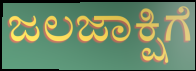
ಜಲಜಾಕ್ಷಿಗೆ